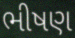
ભીષણ